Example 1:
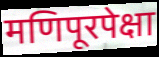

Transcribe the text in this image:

मणिपूरपेक्षा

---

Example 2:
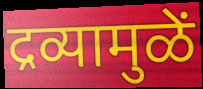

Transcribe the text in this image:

द्रव्यामुळें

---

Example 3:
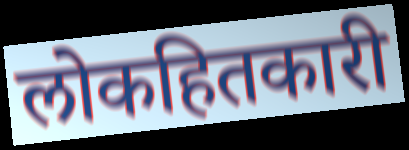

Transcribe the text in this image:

लोकहितकारी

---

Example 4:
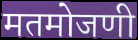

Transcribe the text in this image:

मतमोजणी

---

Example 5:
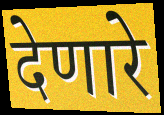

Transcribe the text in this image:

देणारे